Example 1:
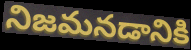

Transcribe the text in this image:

నిజమనడానికి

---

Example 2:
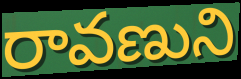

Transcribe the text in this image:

రావణుని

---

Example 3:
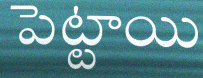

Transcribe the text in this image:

పెట్టాయి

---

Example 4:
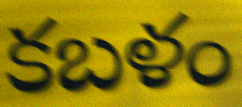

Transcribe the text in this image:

కబళం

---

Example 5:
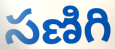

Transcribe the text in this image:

సణిగి